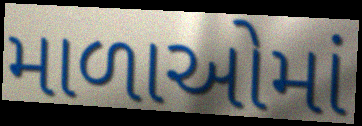
માળાઓમાં